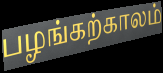
பழங்கற்காலம்